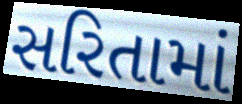
સરિતામાં